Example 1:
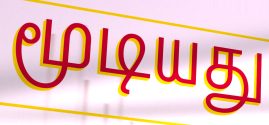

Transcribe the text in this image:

மூடியது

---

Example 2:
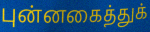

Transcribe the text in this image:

புன்னகைத்துக்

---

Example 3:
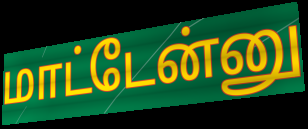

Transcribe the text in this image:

மாட்டேன்னு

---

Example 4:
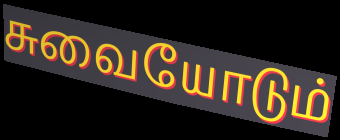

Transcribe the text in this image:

சுவையோடும்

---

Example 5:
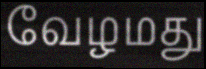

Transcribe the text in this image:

வேழமது